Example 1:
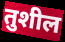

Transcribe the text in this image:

तुशील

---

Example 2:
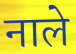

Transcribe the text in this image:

नाले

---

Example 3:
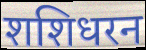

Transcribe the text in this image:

शशिधरन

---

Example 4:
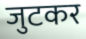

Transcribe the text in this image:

जुटकर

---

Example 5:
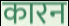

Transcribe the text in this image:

कारन